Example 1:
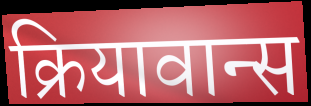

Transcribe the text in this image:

क्रियावान्स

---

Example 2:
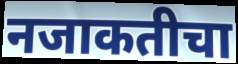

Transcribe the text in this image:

नजाकतीचा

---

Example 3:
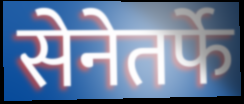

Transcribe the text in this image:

सेनेतर्फे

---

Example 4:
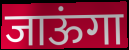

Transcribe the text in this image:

जाऊंगा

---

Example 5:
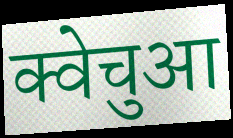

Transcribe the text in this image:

क्वेचुआ